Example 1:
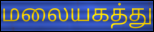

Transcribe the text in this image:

மலையகத்து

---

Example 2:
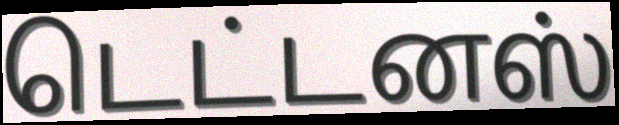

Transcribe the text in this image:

டெட்டனஸ்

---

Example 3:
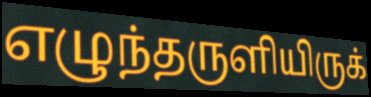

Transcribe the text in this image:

எழுந்தருளியிருக்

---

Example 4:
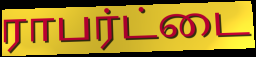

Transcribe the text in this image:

ராபர்ட்டை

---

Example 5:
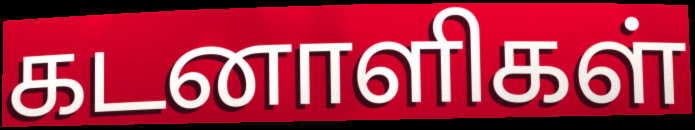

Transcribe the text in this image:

கடனாளிகள்